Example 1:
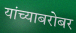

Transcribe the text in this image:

यांच्याबरोबर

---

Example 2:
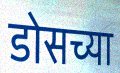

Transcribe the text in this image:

डोसच्या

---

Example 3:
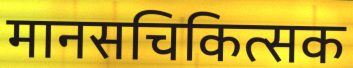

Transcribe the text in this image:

मानसचिकित्सक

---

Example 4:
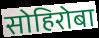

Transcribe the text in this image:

सोहिरोबा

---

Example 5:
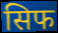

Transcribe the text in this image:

सिफ